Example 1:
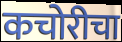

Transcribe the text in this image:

कचोरीचा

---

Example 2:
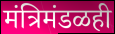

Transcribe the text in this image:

मंत्रिमंडळही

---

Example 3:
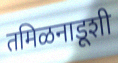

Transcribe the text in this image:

तमिळनाडूशी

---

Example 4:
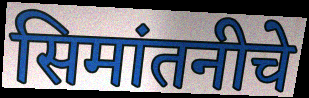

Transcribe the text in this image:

सिमांतनीचे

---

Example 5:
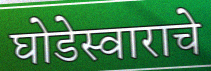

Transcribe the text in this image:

घोडेस्वाराचे